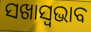
ସଖାସ୍ୱଭାବ